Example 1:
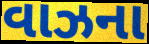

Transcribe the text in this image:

વાઝના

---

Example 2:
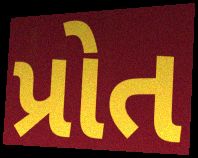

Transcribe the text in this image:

પ્રોત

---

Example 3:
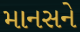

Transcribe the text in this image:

માનસને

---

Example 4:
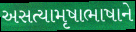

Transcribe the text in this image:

અસત્યામૃષાભાષાને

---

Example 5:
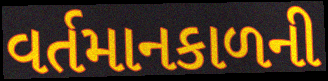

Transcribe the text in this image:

વર્તમાનકાળની